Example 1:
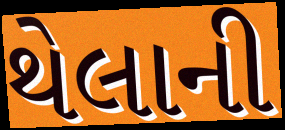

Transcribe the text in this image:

થેલાની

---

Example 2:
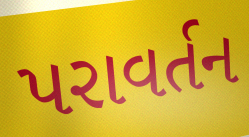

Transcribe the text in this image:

પરાવર્તન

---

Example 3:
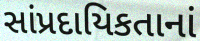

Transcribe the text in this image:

સાંપ્રદાયિકતાનાં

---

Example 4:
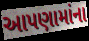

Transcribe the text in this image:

આપણામાંના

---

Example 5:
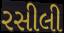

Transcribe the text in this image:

રસીલી